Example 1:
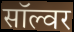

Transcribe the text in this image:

सॉल्वर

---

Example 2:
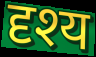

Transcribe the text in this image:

दृश्‍य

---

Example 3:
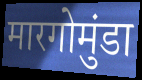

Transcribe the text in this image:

मारगोमुंडा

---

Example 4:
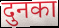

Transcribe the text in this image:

दुनका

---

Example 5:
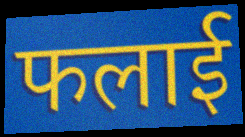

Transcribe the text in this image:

फलाई